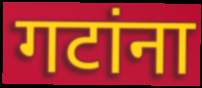
गटांना